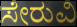
ಸೇರುವಿ